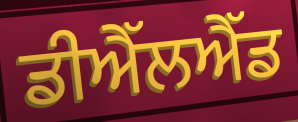
ਡੀਐੱਲਐੱਡ